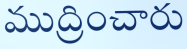
ముద్రించారు